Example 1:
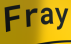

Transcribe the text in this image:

Fray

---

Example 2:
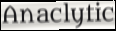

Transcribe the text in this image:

Anaclytic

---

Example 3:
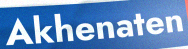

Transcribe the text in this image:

Akhenaten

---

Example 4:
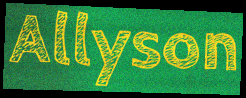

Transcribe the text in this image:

Allyson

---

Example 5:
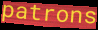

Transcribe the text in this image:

patrons